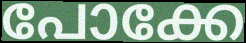
പോക്കേ